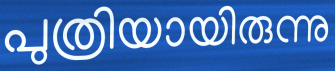
പുത്രിയായിരുന്നു